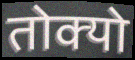
तोक्‍यो